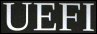
UEFI